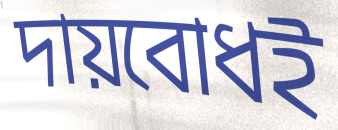
দায়বোধই